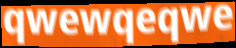
qwewqeqwe